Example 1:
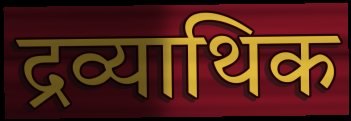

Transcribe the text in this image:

द्रव्याथिक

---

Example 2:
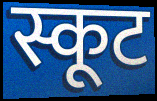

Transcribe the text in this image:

स्कूट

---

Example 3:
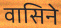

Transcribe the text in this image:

वासिने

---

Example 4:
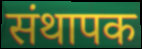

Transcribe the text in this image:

संथापक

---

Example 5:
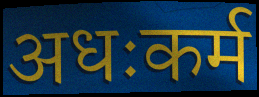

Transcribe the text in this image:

अधःकर्म